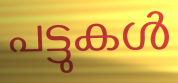
പട്ടുകൾ